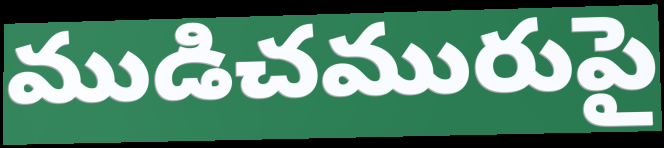
ముడిచమురుపై